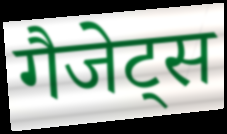
गैजेट्स